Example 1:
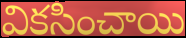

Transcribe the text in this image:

వికసించాయి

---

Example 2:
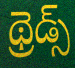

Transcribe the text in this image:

థ్రెడ్స్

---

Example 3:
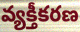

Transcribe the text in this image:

వ్యక్తీకరణ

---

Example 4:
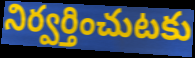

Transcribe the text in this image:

నిర్వర్తించుటకు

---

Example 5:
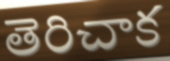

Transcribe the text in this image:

తెరిచాక